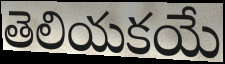
తెలియకయే